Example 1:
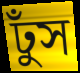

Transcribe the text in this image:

ঢুঁস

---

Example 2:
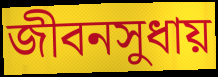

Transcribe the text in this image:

জীবনসুধায়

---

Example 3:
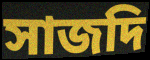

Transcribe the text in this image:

সাজদি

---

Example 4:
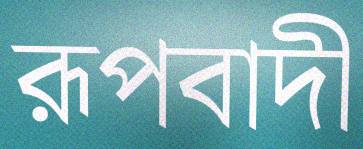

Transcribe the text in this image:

রূপবাদী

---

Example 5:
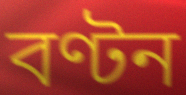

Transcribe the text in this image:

বণ্টন